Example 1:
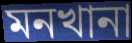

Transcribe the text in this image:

মনখানা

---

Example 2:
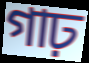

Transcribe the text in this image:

গাঢ়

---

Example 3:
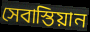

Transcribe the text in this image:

সেবাস্তিয়ান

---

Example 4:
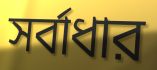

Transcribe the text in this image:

সর্বাধার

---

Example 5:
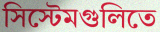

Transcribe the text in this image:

সিস্টেমগুলিতে